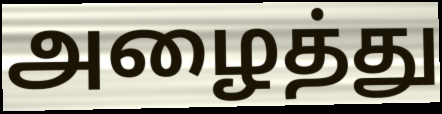
அழைத்து